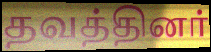
தவத்தினர்